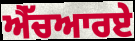
ਐੱਚਆਰਏ